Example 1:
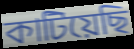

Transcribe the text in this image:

কাটিয়েছি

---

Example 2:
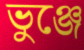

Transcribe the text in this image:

ভুঞ্জে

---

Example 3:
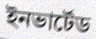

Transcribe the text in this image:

ইনভার্টেড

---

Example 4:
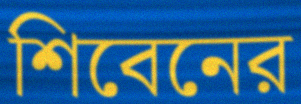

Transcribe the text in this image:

শিবেনের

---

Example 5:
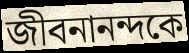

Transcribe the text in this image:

জীবনানন্দকে